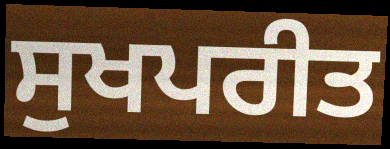
ਸੁਖਪਰੀਤ